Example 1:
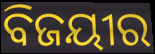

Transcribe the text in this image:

ବିଜୟୀର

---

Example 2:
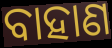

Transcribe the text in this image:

ବାହାଣ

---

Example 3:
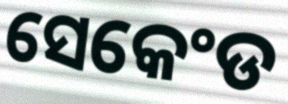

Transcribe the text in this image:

ସେକେଂଡ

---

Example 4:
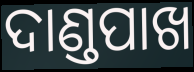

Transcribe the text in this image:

ଦାଣ୍ଡପାଖ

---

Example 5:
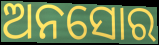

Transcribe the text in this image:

ଅନସୋର